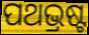
ପଥଭ୍ରଷ୍ଟ